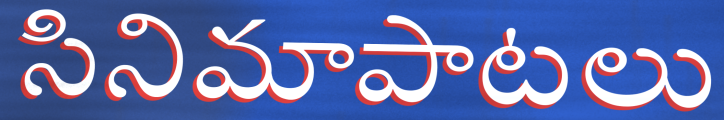
సినిమాపాటలు